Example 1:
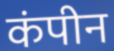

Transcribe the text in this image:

कंपीन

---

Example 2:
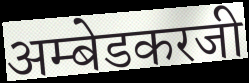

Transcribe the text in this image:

अम्बेडकरजी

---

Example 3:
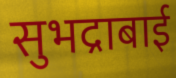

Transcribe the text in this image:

सुभद्राबाई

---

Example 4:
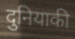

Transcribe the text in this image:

दुनियाकी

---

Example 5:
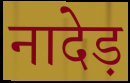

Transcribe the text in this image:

नादेड़